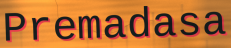
Premadasa